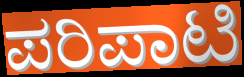
ಪರಿಪಾಟಿ